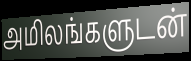
அமிலங்களுடன்